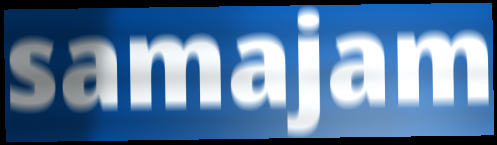
samajam